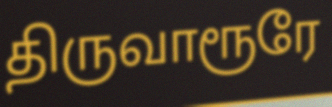
திருவாரூரே